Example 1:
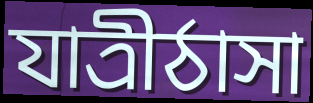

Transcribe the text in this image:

যাত্রীঠাসা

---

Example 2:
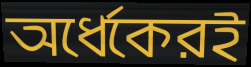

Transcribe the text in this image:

অর্ধেকেরই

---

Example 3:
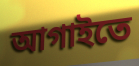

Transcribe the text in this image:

আগাইতে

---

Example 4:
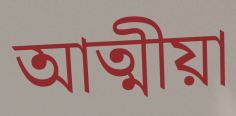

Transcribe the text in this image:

আত্মীয়া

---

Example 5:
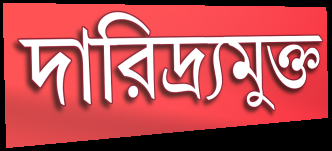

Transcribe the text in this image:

দারিদ্র্যমুক্ত